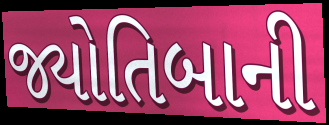
જ્યોતિબાની